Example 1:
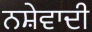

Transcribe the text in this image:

ਨਸ਼ੇਵਾਦੀ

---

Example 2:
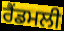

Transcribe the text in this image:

ਰੈਂਡਮਲੀ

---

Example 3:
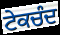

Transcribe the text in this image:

ਟੇਕਚੰਦ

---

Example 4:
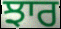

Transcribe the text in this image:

ਝਾਰ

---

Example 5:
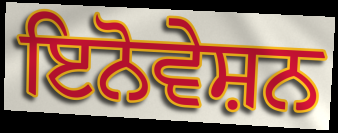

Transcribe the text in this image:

ਇਨੋਵੇਸ਼ਨ